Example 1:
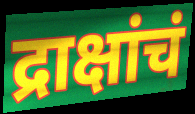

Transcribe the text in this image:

द्राक्षांचं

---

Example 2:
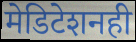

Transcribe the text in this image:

मेडिटेशनही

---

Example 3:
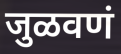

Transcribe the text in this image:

जुळवणं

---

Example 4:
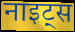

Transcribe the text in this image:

नाइट्‌स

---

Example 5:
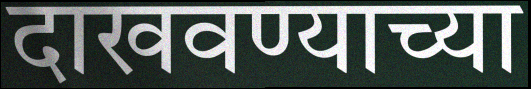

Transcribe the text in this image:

दाखवण्याच्या